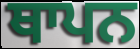
ਥਾਪਨ